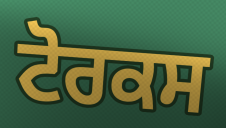
ਟੋਰਕਸ